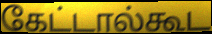
கேட்டால்கூட